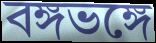
বঙ্গভঙ্গে